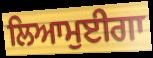
ਲਿਆਮੁਈਗਾ